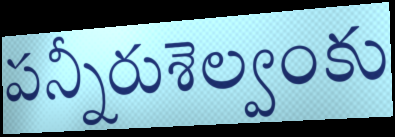
పన్నీరుశెల్వంకు